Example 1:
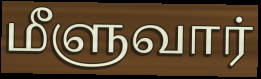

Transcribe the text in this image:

மீளுவார்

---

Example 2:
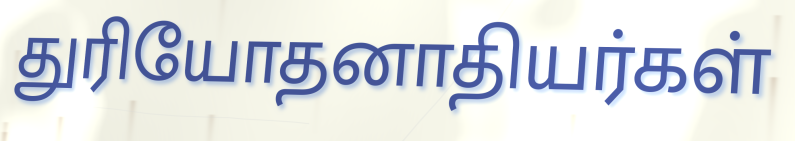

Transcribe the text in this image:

துரியோதனாதியர்கள்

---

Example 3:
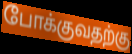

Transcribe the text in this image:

போக்குவதற்கு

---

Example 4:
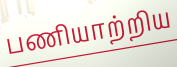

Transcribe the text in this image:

பணியாற்றிய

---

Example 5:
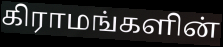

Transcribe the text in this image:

கிராமங்களின்